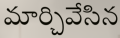
మార్చివేసిన